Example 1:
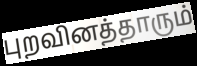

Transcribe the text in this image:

புறவினத்தாரும்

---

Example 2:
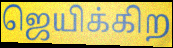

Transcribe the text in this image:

ஜெயிக்கிற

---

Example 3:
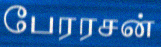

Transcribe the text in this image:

பேரரசன்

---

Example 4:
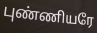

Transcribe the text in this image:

புண்ணியரே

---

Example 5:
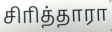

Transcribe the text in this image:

சிரித்தாரா